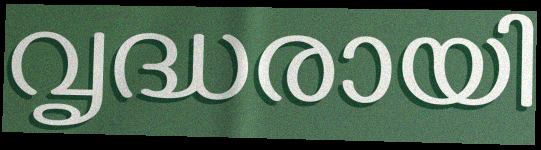
വൃദ്ധരായി